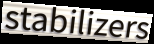
stabilizers